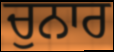
ਚੁਨਾਰ